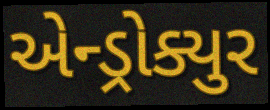
એન્ડ્રોક્યુર